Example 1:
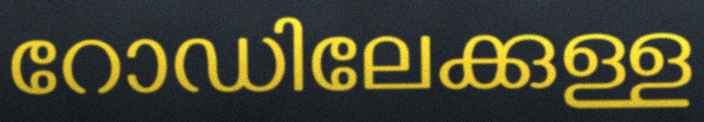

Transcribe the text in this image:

റോഡിലേക്കുള്ള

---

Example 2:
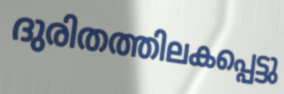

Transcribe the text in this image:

ദുരിതത്തിലകപ്പെട്ടു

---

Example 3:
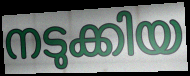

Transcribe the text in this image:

നടുക്കിയ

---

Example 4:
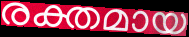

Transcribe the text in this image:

രക്തമായ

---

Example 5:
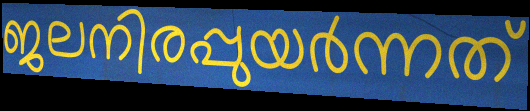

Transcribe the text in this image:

ജലനിരപ്പുയർന്നത്